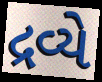
દ્રવ્યે